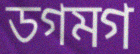
ডগমগ